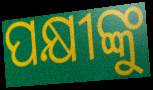
ପକ୍ଷୀଙ୍କୁ